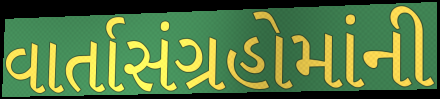
વાર્તાસંગ્રહોમાંની